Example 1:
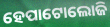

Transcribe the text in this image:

ହେପାଟୋଲୋଜି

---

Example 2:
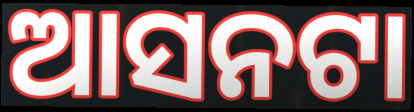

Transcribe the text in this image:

ଆସନଟା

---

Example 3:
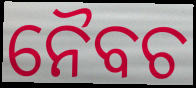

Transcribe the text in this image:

ନୈବଚ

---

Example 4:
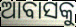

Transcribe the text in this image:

ଆବାସକୁ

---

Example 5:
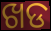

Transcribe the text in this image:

ଖଡ